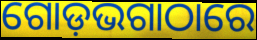
ଗୋଡ଼ଭଗାଠାରେ